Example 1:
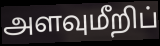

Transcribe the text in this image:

அளவுமீறிப்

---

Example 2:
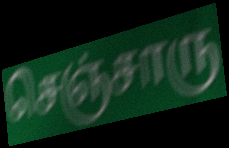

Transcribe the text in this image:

செஞ்சாரு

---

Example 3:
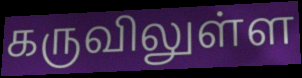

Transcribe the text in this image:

கருவிலுள்ள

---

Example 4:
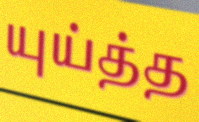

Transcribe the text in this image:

யுய்த்த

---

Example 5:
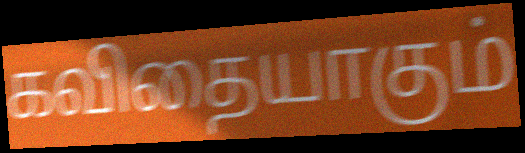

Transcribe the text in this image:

கவிதையாகும்